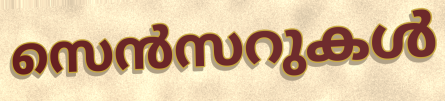
സെൻസറുകൾ